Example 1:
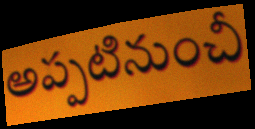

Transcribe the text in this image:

అప్పటినుంచీ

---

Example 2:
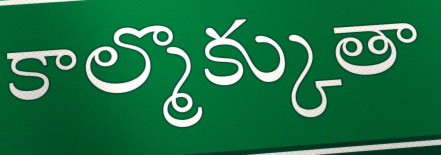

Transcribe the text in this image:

కాల్మొక్కుతా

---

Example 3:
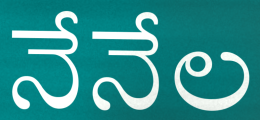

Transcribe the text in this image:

నేనేల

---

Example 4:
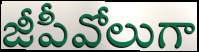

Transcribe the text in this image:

జీపీవోలుగా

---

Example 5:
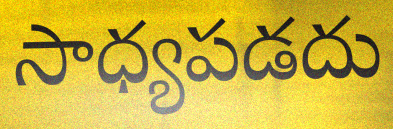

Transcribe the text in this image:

సాధ్యపడదు